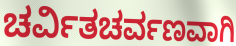
ಚರ್ವಿತಚರ್ವಣವಾಗಿ